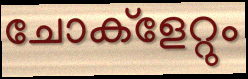
ചോക്ളേറ്റും